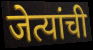
जेत्यांची